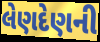
લેણદેણની